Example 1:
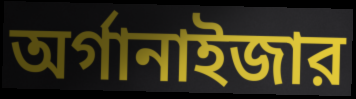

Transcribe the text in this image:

অর্গানাইজার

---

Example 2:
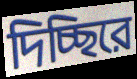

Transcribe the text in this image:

দিচ্ছিরে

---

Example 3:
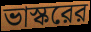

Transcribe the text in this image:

ভাস্করের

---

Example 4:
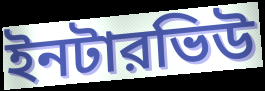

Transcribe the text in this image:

ইনটারভিউ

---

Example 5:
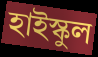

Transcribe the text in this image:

হাইস্কুল